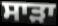
ਸਾੜਾ